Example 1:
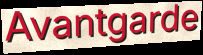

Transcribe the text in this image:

Avantgarde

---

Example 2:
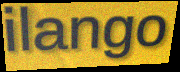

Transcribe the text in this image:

ilango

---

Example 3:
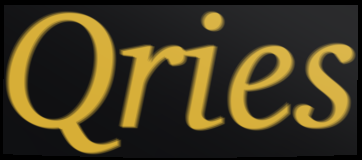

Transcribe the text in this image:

Qries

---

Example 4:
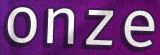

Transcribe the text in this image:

onze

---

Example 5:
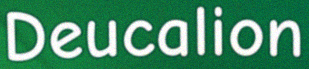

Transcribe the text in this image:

Deucalion